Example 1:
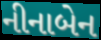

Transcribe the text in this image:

નીનાબેન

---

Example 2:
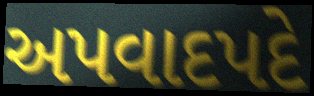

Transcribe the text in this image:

અપવાદપદે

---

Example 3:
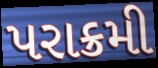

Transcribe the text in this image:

પરાક્રમી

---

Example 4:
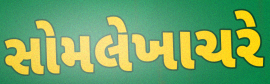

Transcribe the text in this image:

સોમલેખાચરે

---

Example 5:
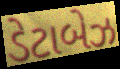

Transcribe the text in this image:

ડેટાબેઝ